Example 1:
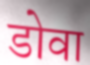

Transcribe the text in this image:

डोवा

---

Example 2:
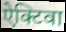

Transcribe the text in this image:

ऐक्टिवा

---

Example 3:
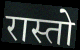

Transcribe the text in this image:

रास्तो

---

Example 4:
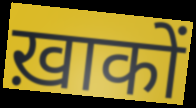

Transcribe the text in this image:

ख़ाकों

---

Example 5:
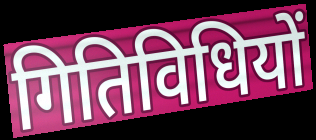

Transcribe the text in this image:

गितिविधियों